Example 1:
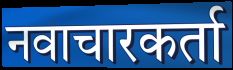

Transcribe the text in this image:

नवाचारकर्ता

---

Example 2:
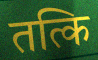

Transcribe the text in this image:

तत्कि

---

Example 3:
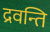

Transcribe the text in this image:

द्रवन्ति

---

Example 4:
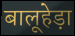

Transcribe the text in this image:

बालूहेड़ा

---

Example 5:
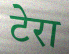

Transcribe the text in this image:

टेरा